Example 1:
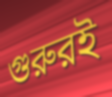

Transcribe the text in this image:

গুরুরই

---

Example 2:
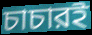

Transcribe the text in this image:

চাচারই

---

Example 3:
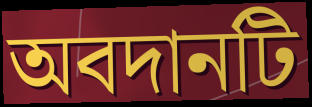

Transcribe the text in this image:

অবদানটি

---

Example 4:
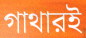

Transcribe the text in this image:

গাথারই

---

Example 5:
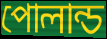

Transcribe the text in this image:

পোলান্ড